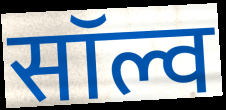
सॉल्व